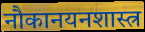
नौकानयनशास्त्र